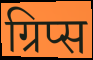
ग्रिप्स